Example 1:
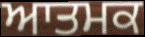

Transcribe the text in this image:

ਆਤਮਕ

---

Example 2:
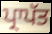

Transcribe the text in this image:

ਪ੍ਰਾਪੱਤ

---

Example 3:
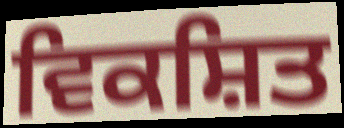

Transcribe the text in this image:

ਵਿਕਸ਼ਿਤ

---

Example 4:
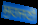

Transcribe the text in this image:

ਸੁਹਜਣੀ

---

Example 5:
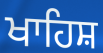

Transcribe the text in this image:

ਖਾਹਿਸ਼